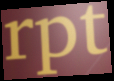
rpt